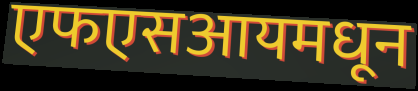
एफएसआयमधून